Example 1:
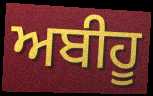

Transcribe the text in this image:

ਅਬੀਹੂ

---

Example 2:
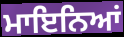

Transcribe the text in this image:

ਮਾਇਨਿਆਂ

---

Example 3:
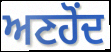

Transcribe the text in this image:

ਅਣਹੋਂਦ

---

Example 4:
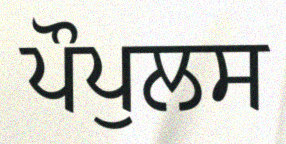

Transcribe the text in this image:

ਪੌਪੁਲਸ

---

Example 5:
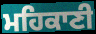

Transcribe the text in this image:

ਮਹਿਕਾਣੀ